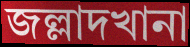
জল্লাদখানা